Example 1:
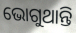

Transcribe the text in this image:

ଭୋଗୁଥାନ୍ତି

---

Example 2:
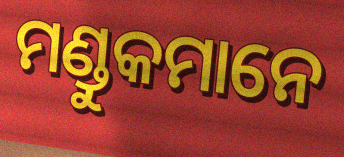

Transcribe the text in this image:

ମଣ୍ଡୁକମାନେ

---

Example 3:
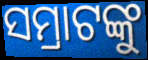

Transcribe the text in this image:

ସମ୍ରାଟଙ୍କୁ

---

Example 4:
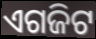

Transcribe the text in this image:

ଏଗଜିଟ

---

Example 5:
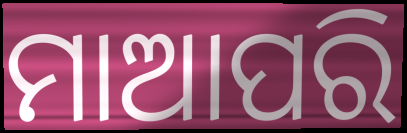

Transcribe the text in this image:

ମାଆପରି